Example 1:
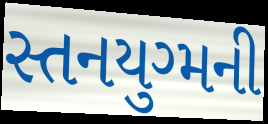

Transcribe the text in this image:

સ્તનયુગ્મની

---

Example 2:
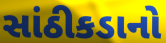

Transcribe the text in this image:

સાંઠીકડાનો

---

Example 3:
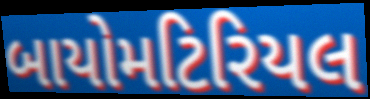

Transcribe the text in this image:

બાયોમટિરિયલ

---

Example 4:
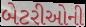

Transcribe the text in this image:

બેટરીઓની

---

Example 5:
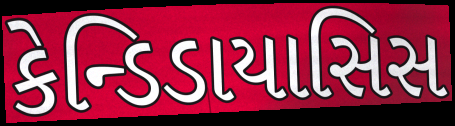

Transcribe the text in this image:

કેન્ડિડાયાસિસ